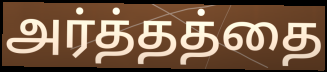
அர்த்தத்தை